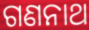
ଗଣନାଥ